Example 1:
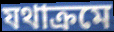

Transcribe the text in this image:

যথাক্ৰমে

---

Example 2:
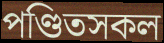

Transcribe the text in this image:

পণ্ডিতসকল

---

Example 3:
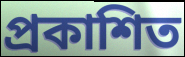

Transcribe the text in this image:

প্ৰকাশিত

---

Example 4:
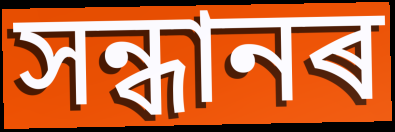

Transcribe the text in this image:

সন্ধানৰ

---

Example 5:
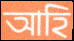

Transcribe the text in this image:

আহি